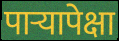
पाऱ्यापेक्षा